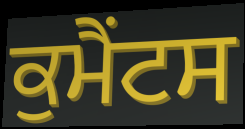
ਕੁਮੈਂਟਸ